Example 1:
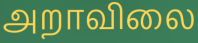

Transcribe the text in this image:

அறாவிலை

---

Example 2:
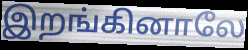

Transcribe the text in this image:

இறங்கினாலே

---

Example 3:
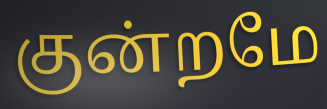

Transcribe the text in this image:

குன்றமே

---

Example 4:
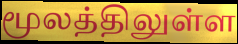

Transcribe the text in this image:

மூலத்திலுள்ள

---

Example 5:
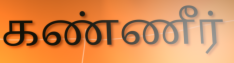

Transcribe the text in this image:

கண்ணீர்